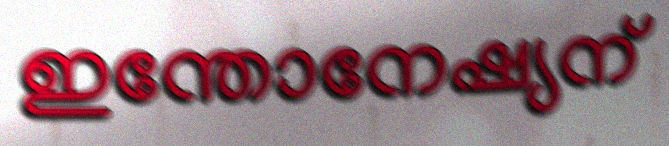
ഇന്തോനേഷ്യന്